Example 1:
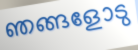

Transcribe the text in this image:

ഞങ്ങളോടു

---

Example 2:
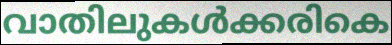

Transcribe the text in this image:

വാതിലുകൾക്കരികെ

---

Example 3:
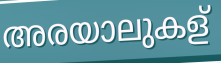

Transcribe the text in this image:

അരയാലുകള്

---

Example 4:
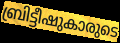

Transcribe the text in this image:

ബ്രിട്ടീഷുകാരുടെ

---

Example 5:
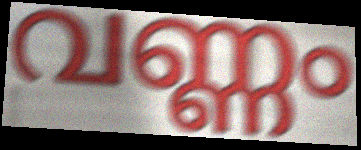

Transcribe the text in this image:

വണ്ണം